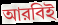
আরবিই